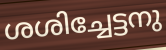
ശശിച്ചേട്ടനു